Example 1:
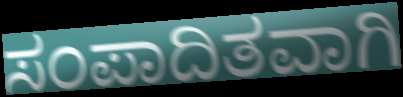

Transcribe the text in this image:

ಸಂಪಾದಿತವಾಗಿ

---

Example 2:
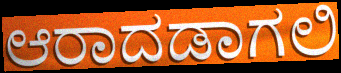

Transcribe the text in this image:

ಆರಾದಡಾಗಲಿ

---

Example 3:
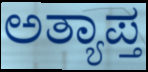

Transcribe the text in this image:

ಅತ್ಯಾಪ್ತ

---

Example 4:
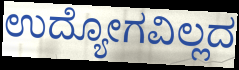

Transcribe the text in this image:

ಉದ್ಯೋಗವಿಲ್ಲದ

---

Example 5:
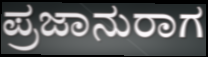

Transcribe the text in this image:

ಪ್ರಜಾನುರಾಗ